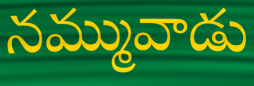
నమ్మువాడు